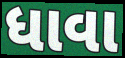
ધાવા